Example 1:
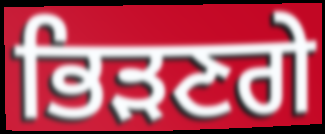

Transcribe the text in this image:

ਭਿੜਣਗੇ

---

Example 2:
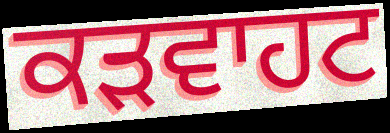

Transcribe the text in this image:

ਕੜਵਾਹਟ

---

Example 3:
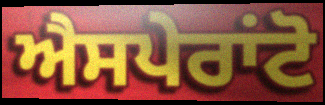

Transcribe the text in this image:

ਐਸਪੇਰਾਂਟੋ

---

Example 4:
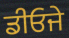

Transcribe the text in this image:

ਡੀਓਜੇ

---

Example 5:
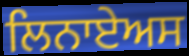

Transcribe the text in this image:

ਲਿਨਾਏਅਸ